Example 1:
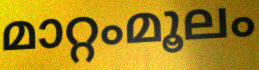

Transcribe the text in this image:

മാറ്റംമൂലം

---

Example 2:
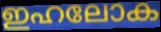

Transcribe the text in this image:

ഇഹലോക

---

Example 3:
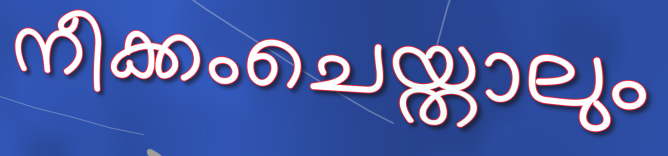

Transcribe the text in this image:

നീക്കംചെയ്താലും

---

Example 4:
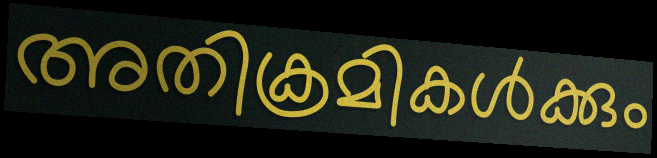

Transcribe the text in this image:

അതിക്രമികൾക്കും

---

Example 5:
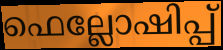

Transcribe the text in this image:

ഫെല്ലോഷിപ്പ്